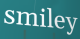
smiley